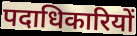
पदाधिकारियों